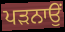
ਪਡ਼ਨਾਉਂ